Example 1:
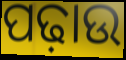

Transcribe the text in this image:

ପଢ଼ାଉ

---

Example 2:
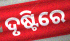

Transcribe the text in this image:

ଦୃଷ୍ଟିରେ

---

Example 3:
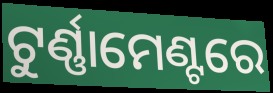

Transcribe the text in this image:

ଟୁର୍ଣ୍ଣାମେଣ୍ଟରେ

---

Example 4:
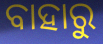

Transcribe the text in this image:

ବାହାରୁ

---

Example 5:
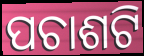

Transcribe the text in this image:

ପଚାଶଟି